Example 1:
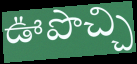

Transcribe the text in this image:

ఊపొచ్చి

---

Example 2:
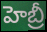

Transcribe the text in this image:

హెబ్రీ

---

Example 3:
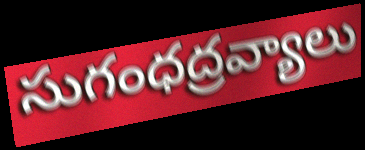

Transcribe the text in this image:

సుగంధద్రవ్యాలు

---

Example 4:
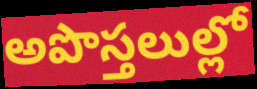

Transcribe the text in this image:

అపొస్తలుల్లో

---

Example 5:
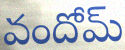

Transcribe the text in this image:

వందోమ్